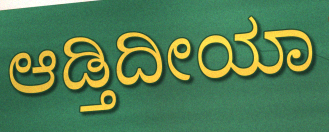
ಆಡ್ತಿದೀಯಾ